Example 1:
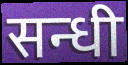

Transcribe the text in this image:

सन्धी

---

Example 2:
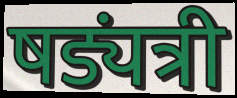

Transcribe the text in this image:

षड्यंत्री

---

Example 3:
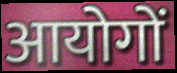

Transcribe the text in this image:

आयोगों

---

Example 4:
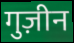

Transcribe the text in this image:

गुज़ीन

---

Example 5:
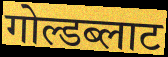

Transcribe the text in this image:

गोल्डब्लाट